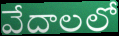
వేదాలలో